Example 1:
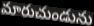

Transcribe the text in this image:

మారుచుండును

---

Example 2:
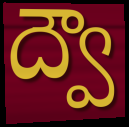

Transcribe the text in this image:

ద్వౌ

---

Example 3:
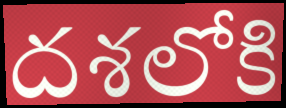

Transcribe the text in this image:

దశలోకి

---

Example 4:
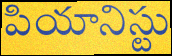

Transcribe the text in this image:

పియానిస్టు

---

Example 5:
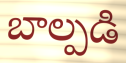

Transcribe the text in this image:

బాల్పడి